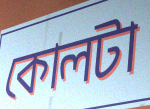
কোলটা